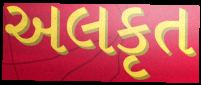
અલકૃત